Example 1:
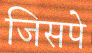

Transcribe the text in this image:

जिसपे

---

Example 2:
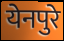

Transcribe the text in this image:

येनपुरे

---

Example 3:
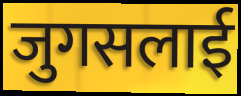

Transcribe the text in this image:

जुगसलाई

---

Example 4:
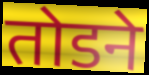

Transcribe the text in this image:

तोडने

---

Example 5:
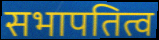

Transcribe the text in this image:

सभापतित्व